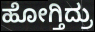
ಹೋಗ್ತಿದ್ರು